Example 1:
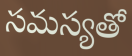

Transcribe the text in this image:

సమస్యతో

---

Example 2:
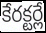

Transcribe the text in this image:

కేరక్టర్లే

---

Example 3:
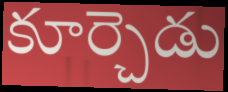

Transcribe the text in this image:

కూర్చెడు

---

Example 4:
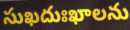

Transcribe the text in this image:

సుఖదుఃఖాలను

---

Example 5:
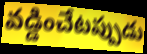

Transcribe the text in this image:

వడ్డించేటప్పుడు